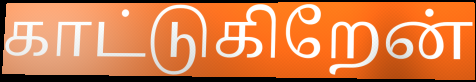
காட்டுகிறேன்